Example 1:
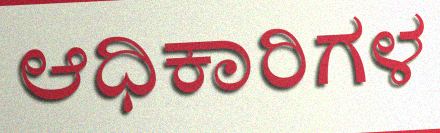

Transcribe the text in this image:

ಆಧಿಕಾರಿಗಳ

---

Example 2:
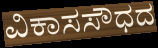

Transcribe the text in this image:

ವಿಕಾಸಸೌಧದ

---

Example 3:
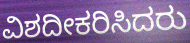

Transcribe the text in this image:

ವಿಶದೀಕರಿಸಿದರು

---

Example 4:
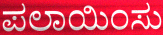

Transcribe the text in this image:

ಪಲಾಯಿಂಸು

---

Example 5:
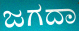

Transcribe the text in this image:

ಜಗದಾ